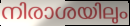
നിരാശയിലും